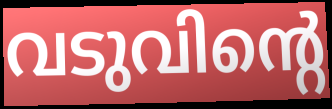
വടുവിന്റെ